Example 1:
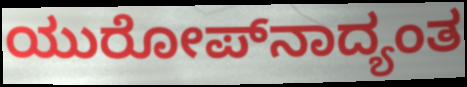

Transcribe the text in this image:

ಯುರೋಪ್‌ನಾದ್ಯಂತ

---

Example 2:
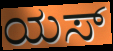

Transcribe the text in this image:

ಯಸ್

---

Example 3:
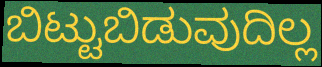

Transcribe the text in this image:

ಬಿಟ್ಟುಬಿಡುವುದಿಲ್ಲ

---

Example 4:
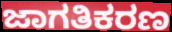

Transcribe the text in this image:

ಜಾಗತಿಕರಣ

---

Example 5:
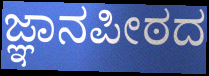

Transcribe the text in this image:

ಜ್ಞಾನಪೀಠದ